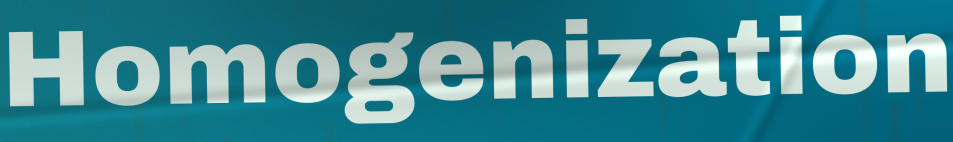
Homogenization